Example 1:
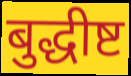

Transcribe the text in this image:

बुद्धीष्ट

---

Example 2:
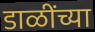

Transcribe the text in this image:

डाळींच्या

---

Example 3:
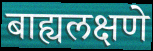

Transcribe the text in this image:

बाह्यलक्षणे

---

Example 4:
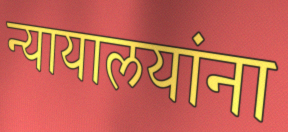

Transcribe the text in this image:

न्यायालयांना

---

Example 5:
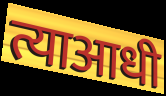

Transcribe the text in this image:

त्याआधी